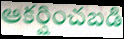
ఆకర్షించబడి